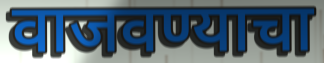
वाजवण्याचा